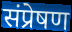
संप्रेषण